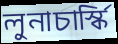
লুনাচার্স্কি